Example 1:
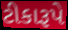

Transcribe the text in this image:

ટીકારૂપે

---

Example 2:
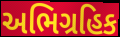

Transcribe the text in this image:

અભિગ્રહિક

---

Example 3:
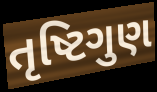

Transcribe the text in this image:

તૃષ્ટિગુણ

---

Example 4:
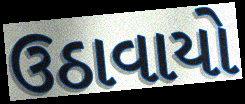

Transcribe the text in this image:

ઉઠાવાયો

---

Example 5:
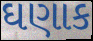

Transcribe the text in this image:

ઘણાક